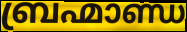
ബ്രഹ്മാണ്ഡ